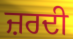
ਜ਼ਰਦੀ